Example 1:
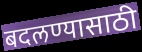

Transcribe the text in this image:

बदलण्यासाठी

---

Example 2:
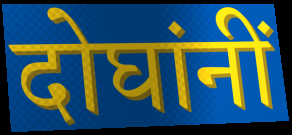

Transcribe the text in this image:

दोघांनीं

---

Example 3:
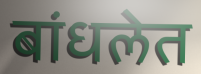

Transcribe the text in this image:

बांधलेत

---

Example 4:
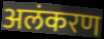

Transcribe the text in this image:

अलंकरण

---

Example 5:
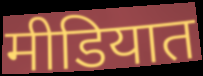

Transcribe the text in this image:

मीडियात